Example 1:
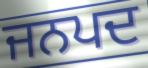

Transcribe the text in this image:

ਜਨਪਦ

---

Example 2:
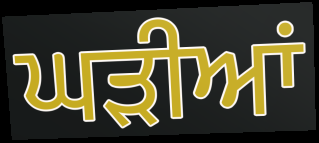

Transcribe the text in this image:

ਘੜੀਆਂ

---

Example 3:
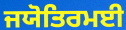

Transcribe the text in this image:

ਜਯੋਤਿਰਮਈ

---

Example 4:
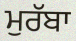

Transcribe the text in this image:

ਮੁਰੱਬਾ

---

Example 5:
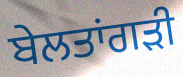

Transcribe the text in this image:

ਬੇਲਤਾਂਗੜੀ